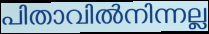
പിതാവിൽനിന്നല്ല